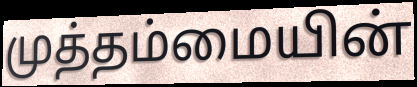
முத்தம்மையின்